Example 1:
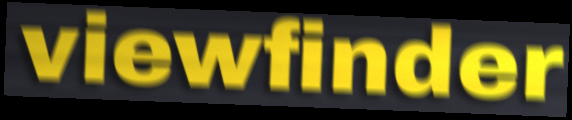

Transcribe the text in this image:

viewfinder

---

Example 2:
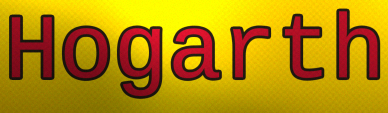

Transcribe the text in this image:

Hogarth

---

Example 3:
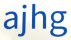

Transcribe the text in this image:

ajhg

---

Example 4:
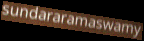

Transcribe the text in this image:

sundararamaswamy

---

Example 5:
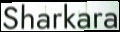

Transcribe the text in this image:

Sharkara